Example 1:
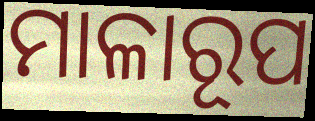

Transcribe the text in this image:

ମାଳାରୂପ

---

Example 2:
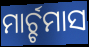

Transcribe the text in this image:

ମାର୍ଚ୍ଚମାସ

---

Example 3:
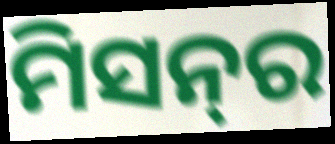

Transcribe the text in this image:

ମିସନ୍‍ର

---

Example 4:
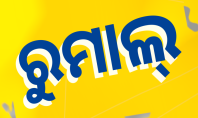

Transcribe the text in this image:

ରୁମାଲ୍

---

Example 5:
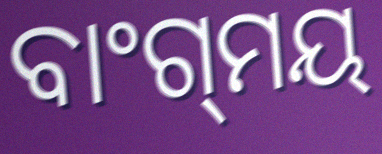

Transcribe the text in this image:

ବାଂଗ୍‌ମୟ